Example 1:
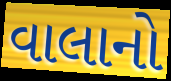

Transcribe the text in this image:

વાલાનો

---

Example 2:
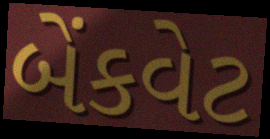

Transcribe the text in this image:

બેંકવેટ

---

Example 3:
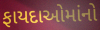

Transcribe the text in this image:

ફાયદાઓમાંનો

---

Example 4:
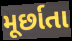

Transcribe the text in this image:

મૂર્છાતા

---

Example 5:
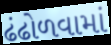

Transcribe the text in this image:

ઢંઢોળવામાં